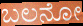
ಬಲನೋ